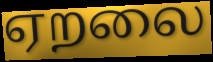
ஏறலை